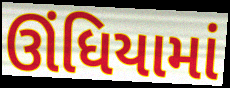
ઊંધિયામાં